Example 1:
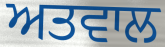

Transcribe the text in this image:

ਅਤਵਾਲ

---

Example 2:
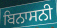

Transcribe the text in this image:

ਬਿਨਾਸਨੀ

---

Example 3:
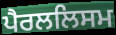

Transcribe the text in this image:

ਪੈਰਲਲਿਸਮ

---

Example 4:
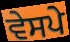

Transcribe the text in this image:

ਵੇਸਪੇ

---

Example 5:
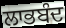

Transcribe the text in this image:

ਲਾਭਬੰਦ